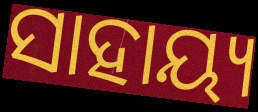
ସାହାୟ୍ୟ